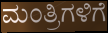
ಮಂತ್ರಿಗಳಿಗೆ